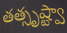
తత్సృష్ట్వా